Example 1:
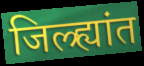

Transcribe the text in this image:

जिल्ह्यांत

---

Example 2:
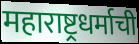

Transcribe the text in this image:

महाराष्ट्रधर्माची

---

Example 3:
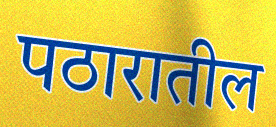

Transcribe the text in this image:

पठारातील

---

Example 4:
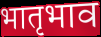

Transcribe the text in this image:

भातृभाव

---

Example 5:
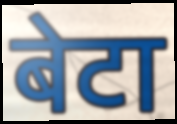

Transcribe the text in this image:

बेटा